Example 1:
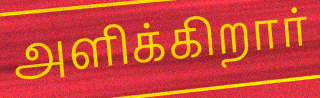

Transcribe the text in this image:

அளிக்கிறார்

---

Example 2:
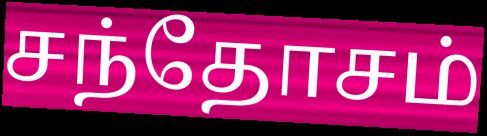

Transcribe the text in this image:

சந்தோசம்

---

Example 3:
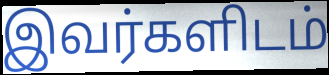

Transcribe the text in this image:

இவர்களிடம்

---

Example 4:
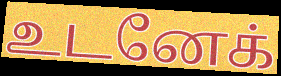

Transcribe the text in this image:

உடனேக்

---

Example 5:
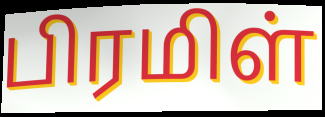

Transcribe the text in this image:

பிரமிள்